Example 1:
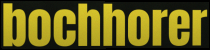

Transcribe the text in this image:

bochhorer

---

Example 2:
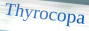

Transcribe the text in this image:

Thyrocopa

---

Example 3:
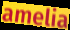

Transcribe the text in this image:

amelia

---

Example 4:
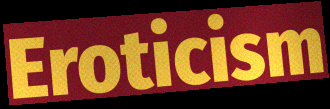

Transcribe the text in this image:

Eroticism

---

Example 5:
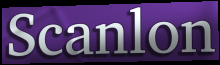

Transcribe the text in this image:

Scanlon